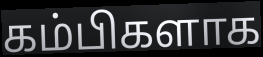
கம்பிகளாக